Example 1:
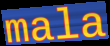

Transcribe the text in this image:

mala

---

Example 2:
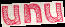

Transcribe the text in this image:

unu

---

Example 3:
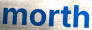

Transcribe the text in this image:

morth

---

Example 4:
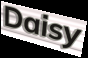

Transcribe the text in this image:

Daisy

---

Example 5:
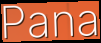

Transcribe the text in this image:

Pana